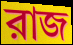
রাজ